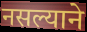
नसल्याने